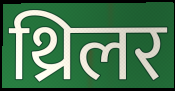
थ्रिलर